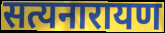
सत्यनारायण